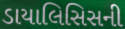
ડાયાલિસિસની